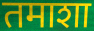
तमाशा